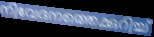
നിവേദനത്തെക്കുറിച്ച്